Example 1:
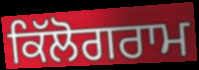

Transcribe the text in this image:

ਕਿੱਲੋਗਰਾਮ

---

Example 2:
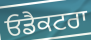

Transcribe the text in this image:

ਓਡੈਕਟਰਾ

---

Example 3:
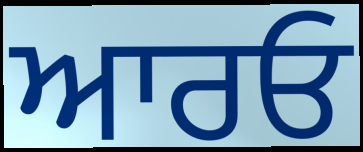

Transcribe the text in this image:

ਆਰਓ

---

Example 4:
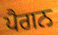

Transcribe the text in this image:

ਪੈਗਨ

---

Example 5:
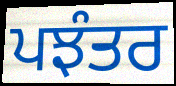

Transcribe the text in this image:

ਪਝੰਤਰ